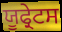
ਯੂਫ੍ਰੇਟਸ